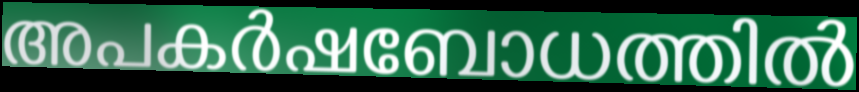
അപകർഷബോധത്തിൽ